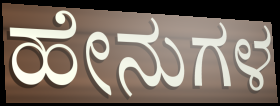
ಹೇನುಗಳ